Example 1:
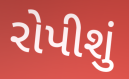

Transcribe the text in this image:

રોપીશું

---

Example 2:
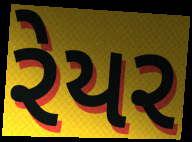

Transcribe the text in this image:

રેયર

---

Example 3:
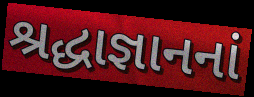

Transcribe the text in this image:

શ્રદ્ધાજ્ઞાનનાં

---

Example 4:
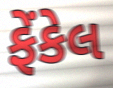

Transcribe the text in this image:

ફેંકેલ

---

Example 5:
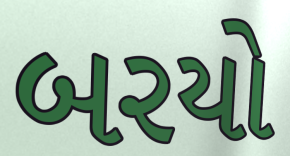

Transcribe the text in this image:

બરયો